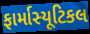
ફાર્માસ્યૂટિકલ